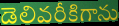
డెలివరీకిగాను